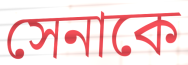
সেনাকে